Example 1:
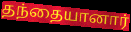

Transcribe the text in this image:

தந்தையானார்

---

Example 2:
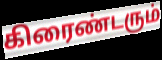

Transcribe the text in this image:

கிரைண்டரும்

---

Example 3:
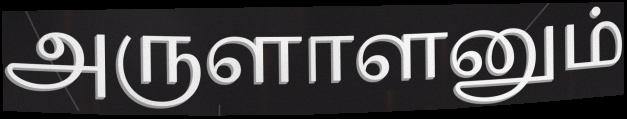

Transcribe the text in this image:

அருளாளனும்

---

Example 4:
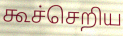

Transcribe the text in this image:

கூச்செறிய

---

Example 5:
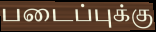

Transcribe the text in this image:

படைப்புக்கு